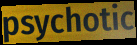
psychotic